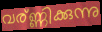
വര്ണ്ണിക്കുന്നു